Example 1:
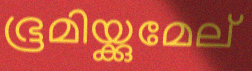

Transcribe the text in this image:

ഭൂമിയ്ക്കുമേല്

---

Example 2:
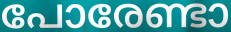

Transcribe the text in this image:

പോരേണ്ടാ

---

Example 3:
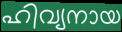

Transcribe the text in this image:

ഹിവ്യനായ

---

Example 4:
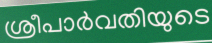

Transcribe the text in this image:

ശ്രീപാർവതിയുടെ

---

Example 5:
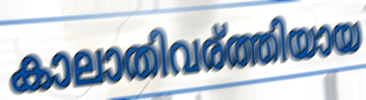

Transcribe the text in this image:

കാലാതിവര്ത്തിയായ